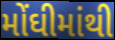
મોંઘીમાંથી